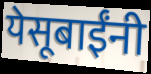
येसूबाईंनी